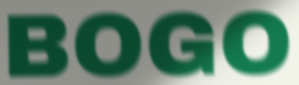
BOGO